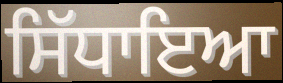
ਸਿੱਧਾਇਆ